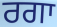
ਰਗਾ